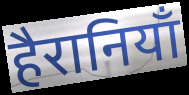
हैरानियाँ